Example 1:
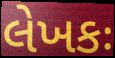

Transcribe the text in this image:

લેખકઃ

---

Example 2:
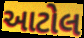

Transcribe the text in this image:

આટોલ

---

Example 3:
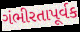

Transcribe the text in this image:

ગંભીરતાપૂર્વક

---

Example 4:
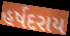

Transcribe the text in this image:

હર્ષદરાય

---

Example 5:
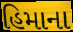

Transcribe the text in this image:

હિમાના